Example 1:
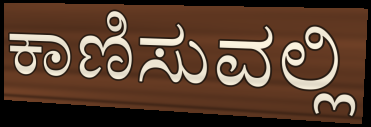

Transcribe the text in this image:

ಕಾಣಿಸುವಲ್ಲಿ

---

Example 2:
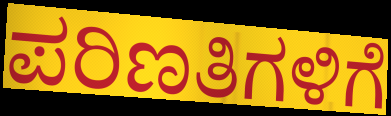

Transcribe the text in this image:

ಪರಿಣತಿಗಳಿಗೆ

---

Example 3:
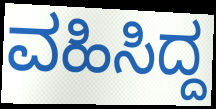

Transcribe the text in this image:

ವಹಿಸಿದ್ದ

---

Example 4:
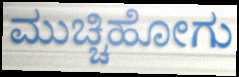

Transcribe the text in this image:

ಮುಚ್ಚಿಹೋಗು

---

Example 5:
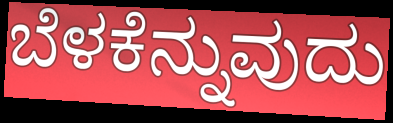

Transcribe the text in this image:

ಬೆಳಕೆನ್ನುವುದು